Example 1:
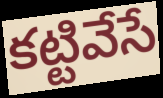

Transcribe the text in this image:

కట్టివేసే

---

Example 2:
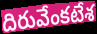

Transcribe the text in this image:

దిరువేంకటేశ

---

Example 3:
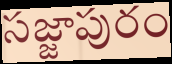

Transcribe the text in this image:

సజ్జాపురం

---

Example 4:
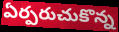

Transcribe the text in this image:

ఏర్పరుచుకొన్న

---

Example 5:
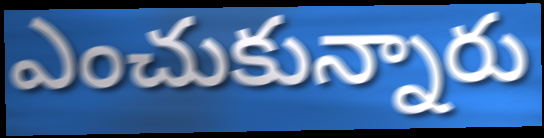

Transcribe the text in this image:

ఎంచుకున్నారు